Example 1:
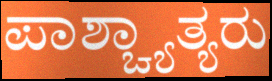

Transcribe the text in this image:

ಪಾಶ್ಚ್ಯಾತ್ಯರು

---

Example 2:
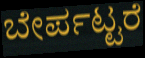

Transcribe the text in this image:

ಬೇರ್ಪಟ್ಟರೆ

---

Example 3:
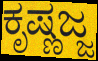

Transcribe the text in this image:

ಕೃಷ್ಣಜ್ಜ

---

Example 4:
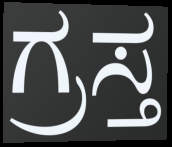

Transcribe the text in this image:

ಗ್ರಸ್ತ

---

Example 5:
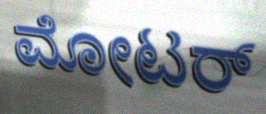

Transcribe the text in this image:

ಮೋಟರ್